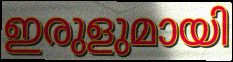
ഇരുളുമായി